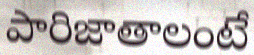
పారిజాతాలంటే